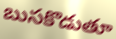
బుసకొడుతూ